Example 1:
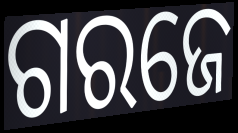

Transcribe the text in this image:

ଗରଜେ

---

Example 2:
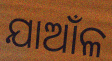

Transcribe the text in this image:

ଯାଆଁଳ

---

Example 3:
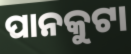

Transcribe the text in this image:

ପାନକୁଟା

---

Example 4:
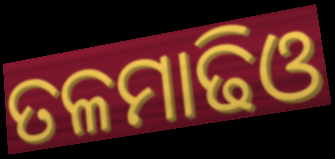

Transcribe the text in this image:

ତଳମାଢିଓ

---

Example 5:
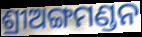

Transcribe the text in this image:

ଶ୍ରୀଅଙ୍ଗମଣ୍ଡନ